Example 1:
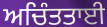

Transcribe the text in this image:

ਅਚਿੰਤਤਾਈ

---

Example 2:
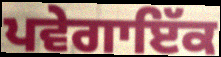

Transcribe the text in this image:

ਪਵੇਗਾਇੱਕ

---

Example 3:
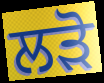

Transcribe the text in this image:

ਲੜੋ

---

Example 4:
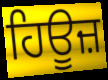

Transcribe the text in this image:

ਹਿਊਜ਼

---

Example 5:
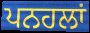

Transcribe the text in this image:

ਪਨਹਲਾਂ